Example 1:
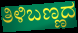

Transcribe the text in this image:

ತಿಳಿಬಣ್ಣದ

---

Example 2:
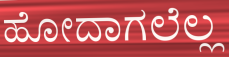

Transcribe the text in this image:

ಹೋದಾಗಲೆಲ್ಲ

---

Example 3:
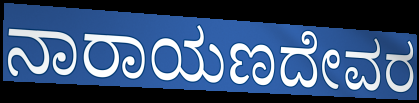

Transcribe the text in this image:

ನಾರಾಯಣದೇವರ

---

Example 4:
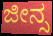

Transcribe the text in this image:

ಜೀನ್ಸ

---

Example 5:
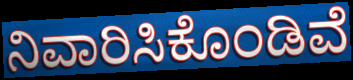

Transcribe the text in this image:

ನಿವಾರಿಸಿಕೊಂಡಿವೆ